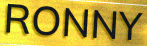
RONNY